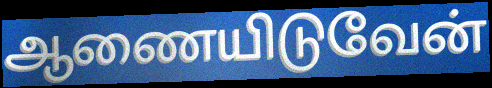
ஆணையிடுவேன்